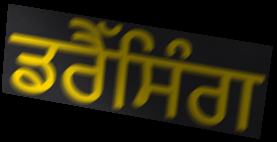
ਡਰੈੱਸਿੰਗ